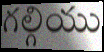
గల్గియు